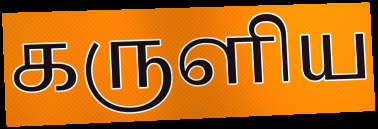
கருளிய